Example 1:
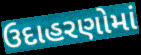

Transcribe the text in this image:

ઉદાહરણોમાં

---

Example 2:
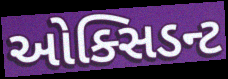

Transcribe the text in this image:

ઓક્સિડન્ટ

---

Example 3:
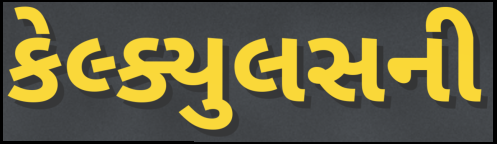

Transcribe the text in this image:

કેલ્ક્યુલસની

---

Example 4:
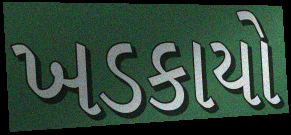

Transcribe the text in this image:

ખડકાયો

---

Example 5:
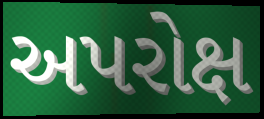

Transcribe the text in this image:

અપરોક્ષ